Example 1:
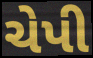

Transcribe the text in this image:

ચેપી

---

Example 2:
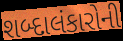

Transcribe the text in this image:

શબ્દાલંકારોની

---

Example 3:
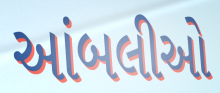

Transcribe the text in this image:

આંબલીઓ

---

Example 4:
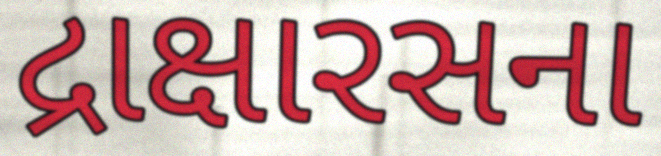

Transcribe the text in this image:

દ્રાક્ષારસના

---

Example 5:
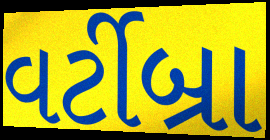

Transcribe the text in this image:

વર્ટીબ્રા